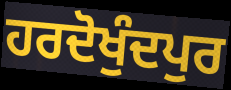
ਹਰਦੋਖੁੰਦਪੁਰ